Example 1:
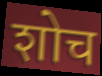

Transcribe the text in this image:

शोच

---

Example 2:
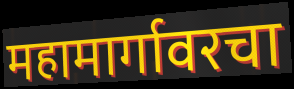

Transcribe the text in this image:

महामार्गावरचा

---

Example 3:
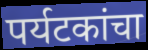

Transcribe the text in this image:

पर्यटकांचा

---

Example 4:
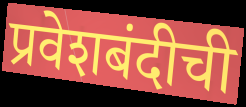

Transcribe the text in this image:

प्रवेशबंदीची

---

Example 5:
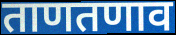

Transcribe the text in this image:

ताणतणाव